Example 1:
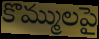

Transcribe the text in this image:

కొమ్ములపై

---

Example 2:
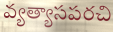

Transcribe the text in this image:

వ్యత్యాసపరచి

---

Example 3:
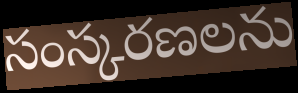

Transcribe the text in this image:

సంస్కరణలను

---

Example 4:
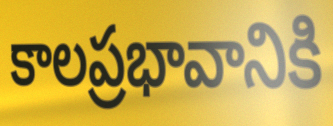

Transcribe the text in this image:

కాలప్రభావానికి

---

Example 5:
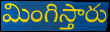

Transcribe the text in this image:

మింగిస్తారు